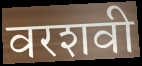
वरशवी